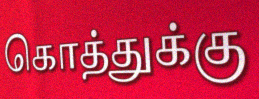
கொத்துக்கு